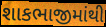
શાકભાજીમાંથી